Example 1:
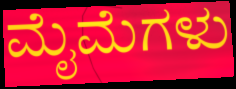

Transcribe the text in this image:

ಮೈಮೆಗಳು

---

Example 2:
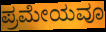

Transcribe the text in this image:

ಪ್ರಮೇಯವೂ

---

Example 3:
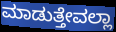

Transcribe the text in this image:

ಮಾಡುತ್ತೇವಲ್ಲಾ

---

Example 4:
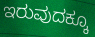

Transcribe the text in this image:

ಇರುವುದಕ್ಕೂ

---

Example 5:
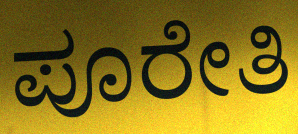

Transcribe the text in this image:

ಪೂರೇತಿ